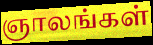
ஞாலங்கள்